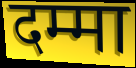
दम्मा